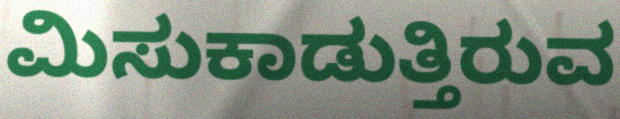
ಮಿಸುಕಾಡುತ್ತಿರುವ